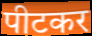
पीटकर